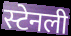
स्‍टेनली